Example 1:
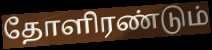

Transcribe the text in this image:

தோளிரண்டும்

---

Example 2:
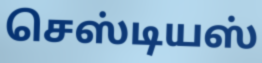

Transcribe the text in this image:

செஸ்டியஸ்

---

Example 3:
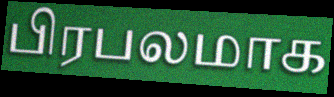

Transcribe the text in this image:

பிரபலமாக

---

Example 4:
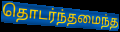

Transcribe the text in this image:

தொடர்ந்தமைந்த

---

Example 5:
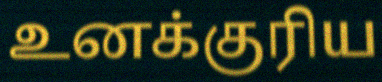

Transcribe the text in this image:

உனக்குரிய